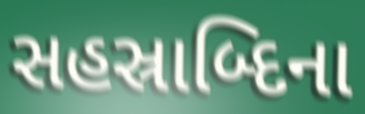
સહસ્રાબ્દિના